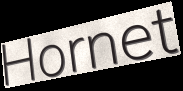
Hornet